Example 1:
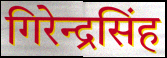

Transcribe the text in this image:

गिरेन्द्रसिंह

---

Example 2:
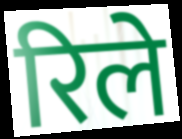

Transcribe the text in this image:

रिले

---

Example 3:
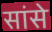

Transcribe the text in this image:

सांसे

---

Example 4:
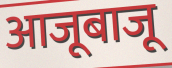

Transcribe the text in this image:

आजूबाजू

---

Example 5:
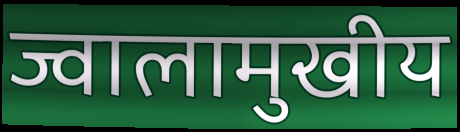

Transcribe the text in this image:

ज्वालामुखीय